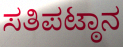
ಸತಿಪಟ್ಠಾನ